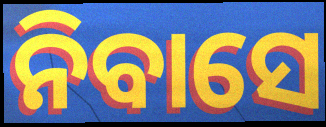
ନିବାସେ